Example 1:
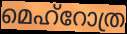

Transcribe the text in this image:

മെഹ്റോത്ര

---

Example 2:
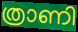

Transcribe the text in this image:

ത്രാണി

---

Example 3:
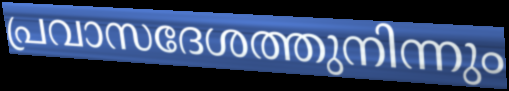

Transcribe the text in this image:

പ്രവാസദേശത്തുനിന്നും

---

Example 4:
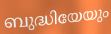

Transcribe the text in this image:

ബുദ്ധിയേയും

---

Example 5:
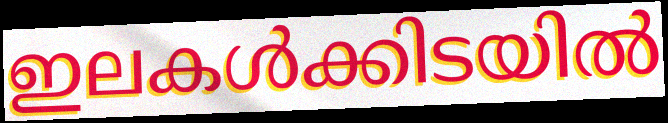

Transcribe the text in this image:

ഇലകൾക്കിടയിൽ